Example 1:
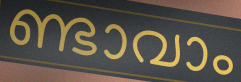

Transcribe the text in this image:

ണ്ടാവാം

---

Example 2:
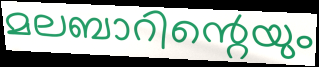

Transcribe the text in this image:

മലബാറിന്റെയും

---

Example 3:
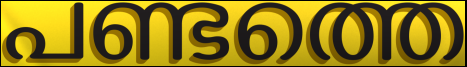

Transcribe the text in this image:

പണ്ടത്തെ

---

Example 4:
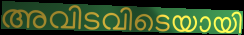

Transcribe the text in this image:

അവിടവിടെയായി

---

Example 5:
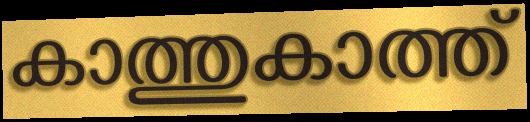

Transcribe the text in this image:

കാത്തുകാത്ത്